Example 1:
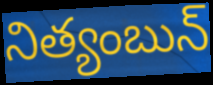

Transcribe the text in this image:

నిత్యంబున్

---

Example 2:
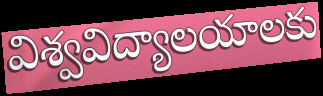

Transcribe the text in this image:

విశ్వవిద్యాలయాలకు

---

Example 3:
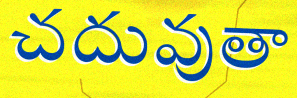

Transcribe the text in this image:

చదువుతా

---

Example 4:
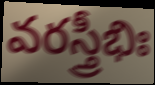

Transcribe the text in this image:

వరస్త్రీభిః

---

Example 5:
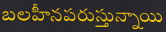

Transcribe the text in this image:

బలహీనపరుస్తున్నాయి